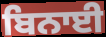
ਬਿਨਾਈ